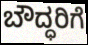
ಬೌದ್ಧರಿಗೆ